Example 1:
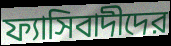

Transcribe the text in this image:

ফ্যাসিবাদীদের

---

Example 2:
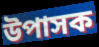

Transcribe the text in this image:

উপাসক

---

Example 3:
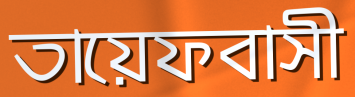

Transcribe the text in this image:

তায়েফবাসী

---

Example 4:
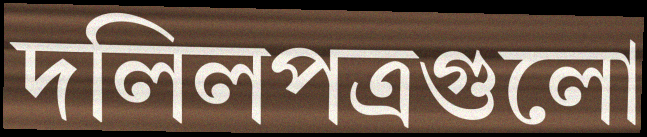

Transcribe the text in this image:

দলিলপত্রগুলো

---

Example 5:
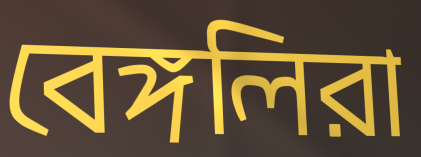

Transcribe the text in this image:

বেঙ্গলিরা